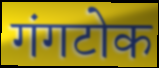
गंगटोक